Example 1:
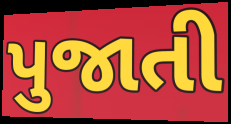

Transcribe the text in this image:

પુજાતી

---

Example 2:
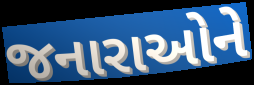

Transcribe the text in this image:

જનારાઓને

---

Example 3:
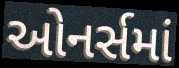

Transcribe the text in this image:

ઓનર્સમાં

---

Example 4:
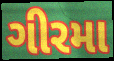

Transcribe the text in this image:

ગીરમા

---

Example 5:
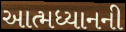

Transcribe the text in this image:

આત્મધ્યાનની